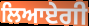
ਲਿਆਏਗੀ